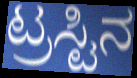
ಟ್ರಸ್ಟಿನ